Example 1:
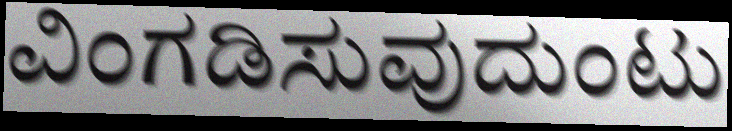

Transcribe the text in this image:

ವಿಂಗಡಿಸುವುದುಂಟು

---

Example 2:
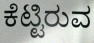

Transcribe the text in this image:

ಕೆಟ್ಟಿರುವ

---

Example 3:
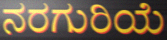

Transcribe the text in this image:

ನರಗುರಿಯೆ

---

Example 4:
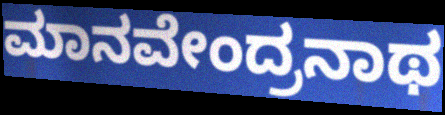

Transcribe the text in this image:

ಮಾನವೇಂದ್ರನಾಥ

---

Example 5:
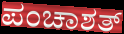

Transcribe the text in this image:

ಪಂಚಾಶತ್